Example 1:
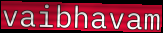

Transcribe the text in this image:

vaibhavam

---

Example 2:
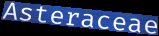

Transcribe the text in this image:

Asteraceae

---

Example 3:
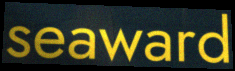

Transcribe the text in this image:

seaward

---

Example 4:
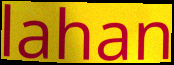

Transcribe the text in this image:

lahan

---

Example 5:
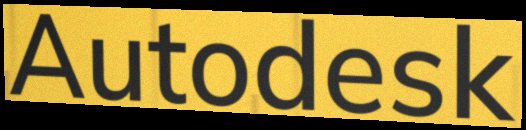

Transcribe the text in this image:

Autodesk